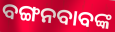
ବଙ୍ଗନବାବଙ୍କ